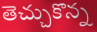
తెచ్చుకొన్న